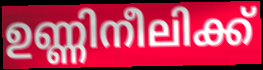
ഉണ്ണിനീലിക്ക്